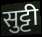
सुट्टी